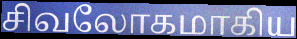
சிவலோகமாகிய